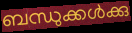
ബന്ധുക്കൾക്കു